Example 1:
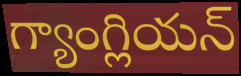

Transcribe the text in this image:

గ్యాంగ్లియన్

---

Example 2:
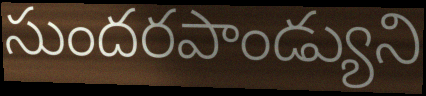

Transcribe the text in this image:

సుందరపాండ్యుని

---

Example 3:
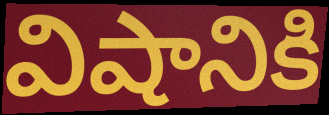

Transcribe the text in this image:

విషానికి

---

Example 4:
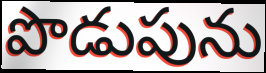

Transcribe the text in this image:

పొడుపును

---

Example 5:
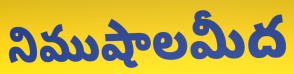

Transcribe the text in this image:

నిముషాలమీద